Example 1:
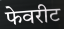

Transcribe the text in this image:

फेवरीट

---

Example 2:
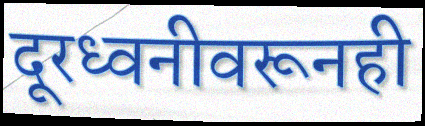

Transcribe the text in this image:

दूरध्वनीवरूनही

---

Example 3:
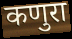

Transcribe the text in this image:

कणुरा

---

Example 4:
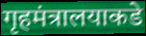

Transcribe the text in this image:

गृहमंत्रालयाकडे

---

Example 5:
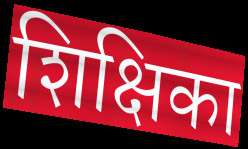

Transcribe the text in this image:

शिक्षिका